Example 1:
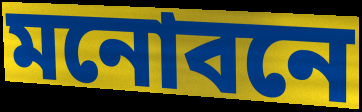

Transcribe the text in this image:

মনোবনে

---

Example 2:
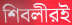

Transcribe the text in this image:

শিবলীরই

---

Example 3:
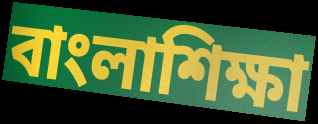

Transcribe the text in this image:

বাংলাশিক্ষা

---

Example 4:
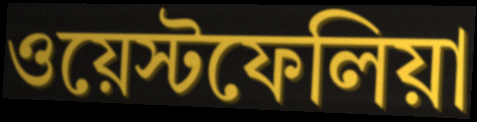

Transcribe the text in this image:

ওয়েস্টফেলিয়া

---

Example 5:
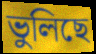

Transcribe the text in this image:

ভুলিছে